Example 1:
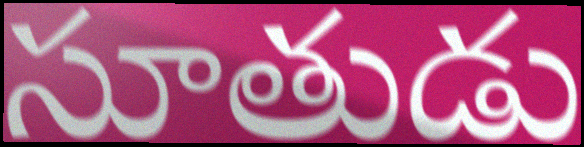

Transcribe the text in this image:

సూతుడు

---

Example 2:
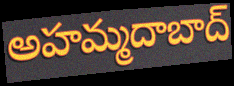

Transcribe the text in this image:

అహమ్మదాబాద్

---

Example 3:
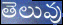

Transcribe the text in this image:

తెలువు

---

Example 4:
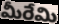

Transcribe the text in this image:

మీరేమి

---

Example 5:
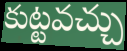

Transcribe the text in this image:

కుట్టవచ్చు